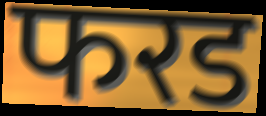
फरड